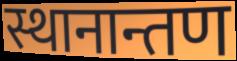
स्थानान्तण